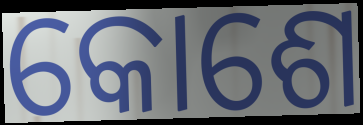
କୋଶେ